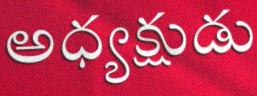
అధ్యక్షుడు